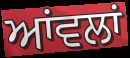
ਆਂਵਲਾਂ